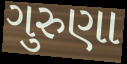
ગુરુણા